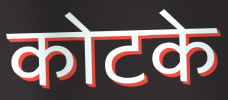
कोटके